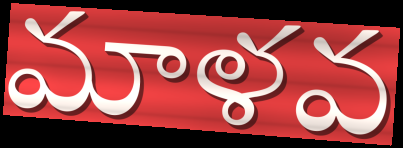
మాళవ